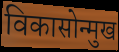
विकासोन्मुख